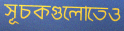
সূচকগুলোতেও